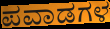
ಪವಾಡಗಳ